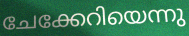
ചേക്കേറിയെന്നു